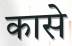
कासे